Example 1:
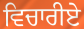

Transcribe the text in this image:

ਵਿਚਾਰੀਏ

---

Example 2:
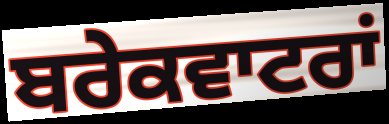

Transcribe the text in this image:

ਬਰੇਕਵਾਟਰਾਂ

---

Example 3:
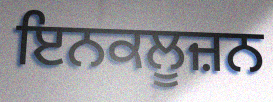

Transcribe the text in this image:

ਇਨਕਲੂਜ਼ਨ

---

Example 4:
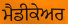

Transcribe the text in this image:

ਮੈਡੀਕੇਅਰ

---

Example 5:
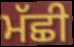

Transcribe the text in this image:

ਮੱਛੀ